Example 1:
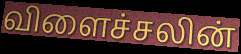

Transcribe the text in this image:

விளைச்சலின்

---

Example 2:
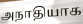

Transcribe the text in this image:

அநாதியாக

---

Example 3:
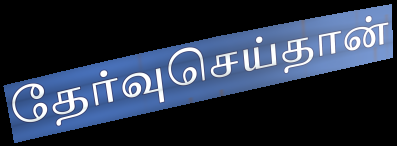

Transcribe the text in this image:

தேர்வுசெய்தான்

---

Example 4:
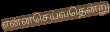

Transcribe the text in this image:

என்னசெய்வதென்று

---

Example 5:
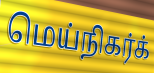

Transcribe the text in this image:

மெய்நிகர்க்